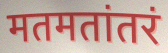
मतमतांतरं